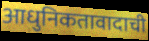
आधुनिकतावादाची